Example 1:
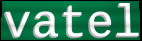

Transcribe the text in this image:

vatel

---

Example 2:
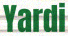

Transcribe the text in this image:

Yardi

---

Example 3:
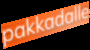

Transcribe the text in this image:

pakkadalle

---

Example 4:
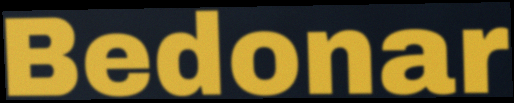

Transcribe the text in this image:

Bedonar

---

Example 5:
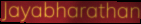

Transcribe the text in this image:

Jayabharathan